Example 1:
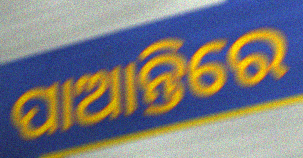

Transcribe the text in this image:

ପାଆନ୍ତିରେ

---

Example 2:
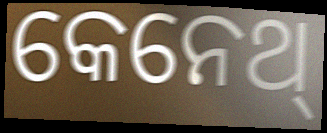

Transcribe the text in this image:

କେନେଥ୍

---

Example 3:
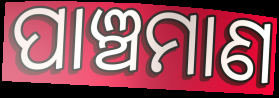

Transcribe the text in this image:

ପାଞ୍ଚମାଣ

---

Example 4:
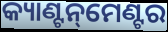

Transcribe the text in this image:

କ୍ୟାଣ୍ଟନ୍‌ମେଣ୍ଟର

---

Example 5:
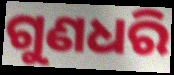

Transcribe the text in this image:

ଗୁଣଧରି